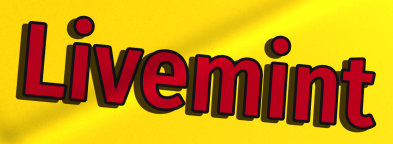
Livemint